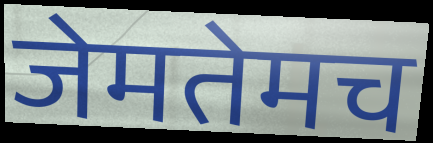
जेमतेमच